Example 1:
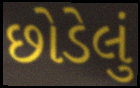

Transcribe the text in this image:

છોડેલું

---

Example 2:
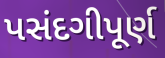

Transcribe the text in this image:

પસંદગીપૂર્ણ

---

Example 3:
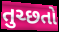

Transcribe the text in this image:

તુચ્છતો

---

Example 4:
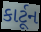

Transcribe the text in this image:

કાર્ટૂન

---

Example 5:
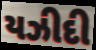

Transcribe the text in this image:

યઝીદી